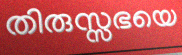
തിരുസ്സഭയെ